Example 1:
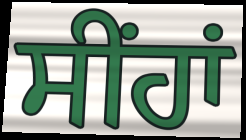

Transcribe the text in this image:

ਸੀਂਹਾਂ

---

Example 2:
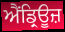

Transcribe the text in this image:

ਐਂਡ੍ਰਿਊਜ਼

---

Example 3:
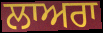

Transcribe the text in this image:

ਲਾਅਰਾ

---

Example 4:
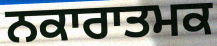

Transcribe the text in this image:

ਨਕਾਰਾਤਮਕ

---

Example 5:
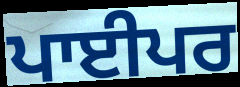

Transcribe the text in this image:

ਪਾਈਪਰ